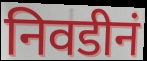
निवडीनं